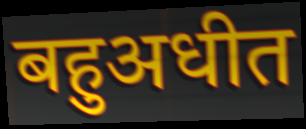
बहुअधीत